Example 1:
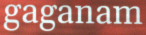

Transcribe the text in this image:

gaganam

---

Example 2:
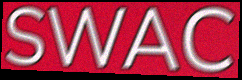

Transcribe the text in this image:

SWAC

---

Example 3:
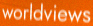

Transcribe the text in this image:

worldviews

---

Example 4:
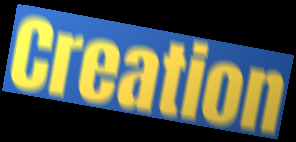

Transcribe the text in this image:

Creation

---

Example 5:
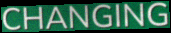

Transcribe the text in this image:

CHANGING